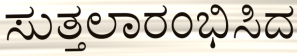
ಸುತ್ತಲಾರಂಭಿಸಿದ